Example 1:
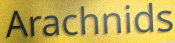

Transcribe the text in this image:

Arachnids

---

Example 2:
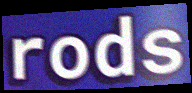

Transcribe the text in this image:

rods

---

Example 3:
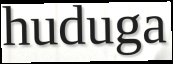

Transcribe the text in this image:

huduga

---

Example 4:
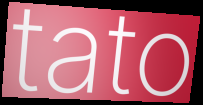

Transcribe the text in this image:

tato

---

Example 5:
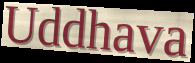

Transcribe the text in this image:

Uddhava